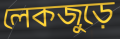
লেকজুড়ে